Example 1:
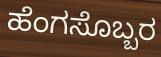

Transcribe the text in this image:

ಹೆಂಗಸೊಬ್ಬರ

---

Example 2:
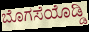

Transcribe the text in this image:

ಬೊಗಸೆಯೊಡ್ಡಿ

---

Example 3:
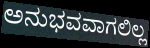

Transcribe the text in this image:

ಅನುಭವವಾಗಲಿಲ್ಲ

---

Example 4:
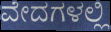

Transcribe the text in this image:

ವೇದಗಳಲ್ಲಿ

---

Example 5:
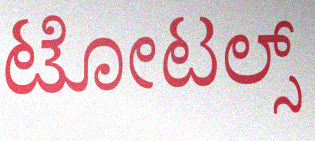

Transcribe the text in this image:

ಟೋಟಲ್ಸ್